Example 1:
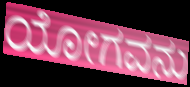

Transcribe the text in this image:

ಯೋಗವನು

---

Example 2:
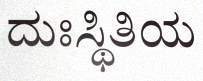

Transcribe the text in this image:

ದುಃಸ್ಥಿತಿಯ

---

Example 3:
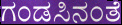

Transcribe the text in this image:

ಗಂಡಸಿನಂತೆ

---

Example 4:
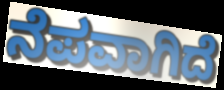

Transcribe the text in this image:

ನೆಪವಾಗಿದೆ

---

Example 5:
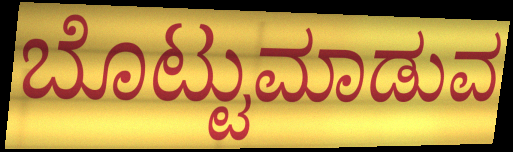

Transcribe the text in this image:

ಬೊಟ್ಟುಮಾಡುವ